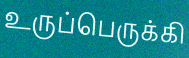
உருப்பெருக்கி